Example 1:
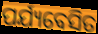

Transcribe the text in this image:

ପର୍ଯ୍ୟବେସିତ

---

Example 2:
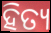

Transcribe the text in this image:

ହିତ୍ୟ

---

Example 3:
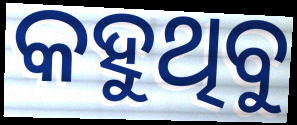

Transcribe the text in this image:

କହୁଥିବୁ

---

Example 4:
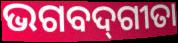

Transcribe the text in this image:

ଭଗବଦ୍‌ଗୀତା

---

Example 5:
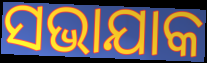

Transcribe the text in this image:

ସଭାଯାକ